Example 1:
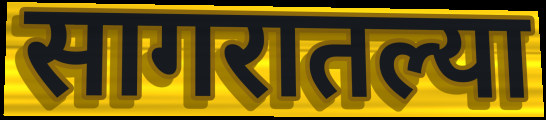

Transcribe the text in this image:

सागरातल्या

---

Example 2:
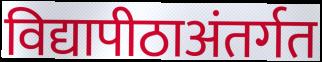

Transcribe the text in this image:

विद्यापीठाअंतर्गत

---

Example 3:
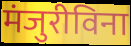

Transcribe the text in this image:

मंजुरीविना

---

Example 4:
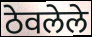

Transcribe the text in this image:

ठेवलेले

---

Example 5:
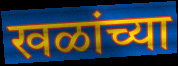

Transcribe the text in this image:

खळांच्या